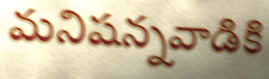
మనిషన్నవాడికి